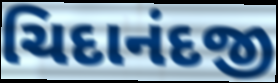
ચિદાનંદજી